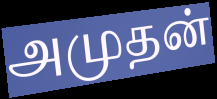
அமுதன்